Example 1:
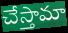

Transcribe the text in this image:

చేస్తామా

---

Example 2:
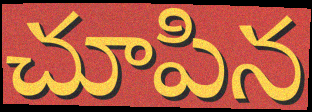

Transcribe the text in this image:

చూపిన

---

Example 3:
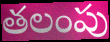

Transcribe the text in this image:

తలంపు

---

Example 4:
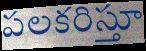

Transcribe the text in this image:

పలకరిస్తూ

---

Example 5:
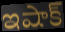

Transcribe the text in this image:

ఇషాక్